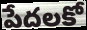
పేదలకో